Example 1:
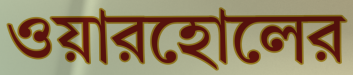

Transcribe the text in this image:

ওয়ারহোলের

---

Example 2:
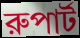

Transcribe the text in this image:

রুপার্ট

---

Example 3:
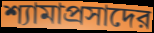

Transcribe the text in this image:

শ্যামাপ্রসাদের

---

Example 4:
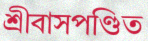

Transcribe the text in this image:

শ্রীবাসপণ্ডিত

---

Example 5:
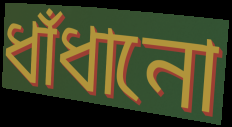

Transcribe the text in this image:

ধাঁধানো